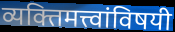
व्यक्तिमत्त्वांविषयी